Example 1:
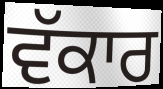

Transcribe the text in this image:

ਵੱਕਾਰ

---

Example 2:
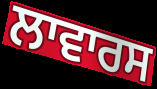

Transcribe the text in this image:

ਲਾਵਾਰਸ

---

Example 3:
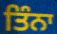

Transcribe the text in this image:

ਤਿੰਨਾ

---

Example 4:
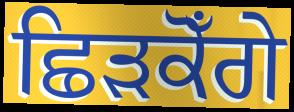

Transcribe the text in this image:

ਛਿੜਕੋਁਗੇ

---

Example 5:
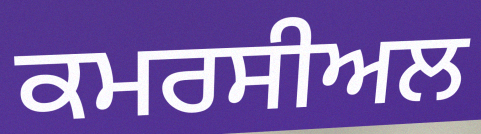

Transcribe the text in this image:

ਕਮਰਸੀਅਲ